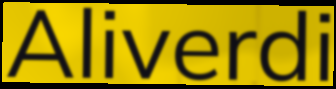
Aliverdi